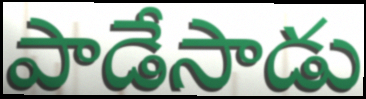
పాడేసాడు